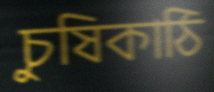
চুষিকাঠি